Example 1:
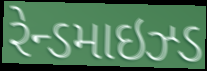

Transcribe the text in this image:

રેન્ડમાઇઝ્ડ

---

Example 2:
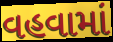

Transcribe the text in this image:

વહવામાં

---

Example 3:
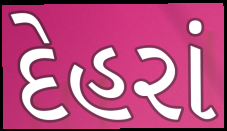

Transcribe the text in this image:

દેહરાં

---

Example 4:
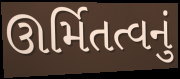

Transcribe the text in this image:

ઊર્મિતત્વનું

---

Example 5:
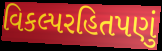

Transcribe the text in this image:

વિકલ્પરહિતપણું